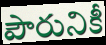
పౌరునికీ